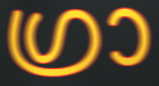
ഗ്രാ